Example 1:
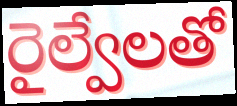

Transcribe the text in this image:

రైల్వేలతో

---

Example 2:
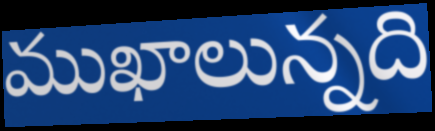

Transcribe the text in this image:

ముఖాలున్నది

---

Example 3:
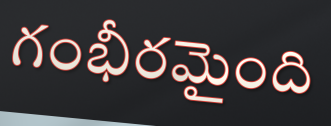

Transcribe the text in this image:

గంభీరమైంది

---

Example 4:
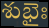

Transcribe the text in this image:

శుభైః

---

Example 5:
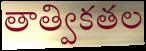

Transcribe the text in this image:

తాత్వికతల